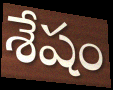
శేషం